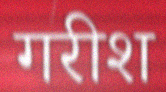
गरीश